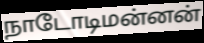
நாடோடிமன்னன்